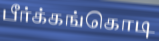
பீர்க்கங்கொடி